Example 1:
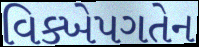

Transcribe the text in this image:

વિક્ખેપગતેન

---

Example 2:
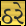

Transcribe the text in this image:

ઠરે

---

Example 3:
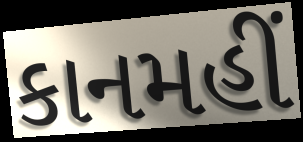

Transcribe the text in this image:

કાનમહીં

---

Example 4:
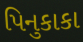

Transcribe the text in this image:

પિનુકાકા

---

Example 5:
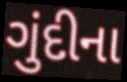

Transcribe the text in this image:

ગુંદીના